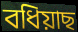
বধিয়াছ